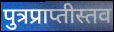
पुत्रप्राप्तीस्तव